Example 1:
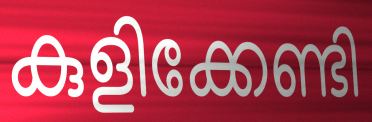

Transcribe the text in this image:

കുളിക്കേണ്ടി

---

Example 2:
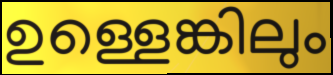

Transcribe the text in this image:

ഉള്ളെങ്കിലും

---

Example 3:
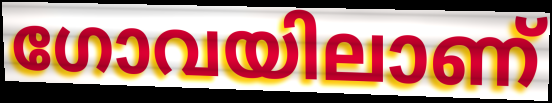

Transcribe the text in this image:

ഗോവയിലാണ്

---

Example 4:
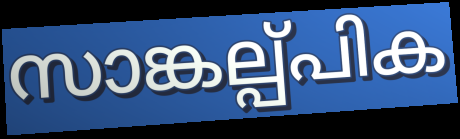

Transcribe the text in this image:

സാങ്കല്പ്പിക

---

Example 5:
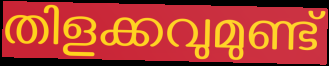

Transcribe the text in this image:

തിളക്കവുമുണ്ട്